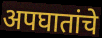
अपघातांचे